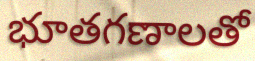
భూతగణాలతో